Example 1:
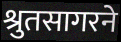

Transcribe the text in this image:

श्रुतसागरने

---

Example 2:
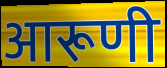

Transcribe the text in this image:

आरूणी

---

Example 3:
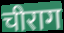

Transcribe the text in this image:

चीराग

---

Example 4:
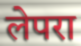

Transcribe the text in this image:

लेपरा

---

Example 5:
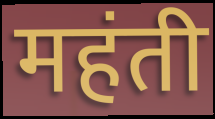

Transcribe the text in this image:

महंती